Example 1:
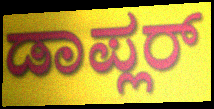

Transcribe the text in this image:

ಡಾಪ್ಲರ್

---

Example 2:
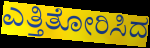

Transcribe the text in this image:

ಎತ್ತಿತೋರಿಸಿದ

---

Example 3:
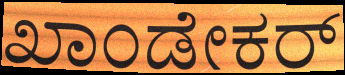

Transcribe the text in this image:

ಖಾಂಡೇಕರ್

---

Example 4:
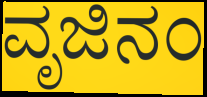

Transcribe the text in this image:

ವೃಜಿನಂ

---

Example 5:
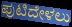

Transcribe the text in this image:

ಪುಟಿದೇಳಲು